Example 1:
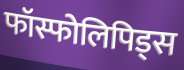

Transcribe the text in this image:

फॉस्फोलिपिड्स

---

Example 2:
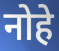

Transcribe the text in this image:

नोहे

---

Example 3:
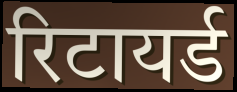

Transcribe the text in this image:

रिटायर्ड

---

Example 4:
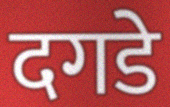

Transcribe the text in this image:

दगडे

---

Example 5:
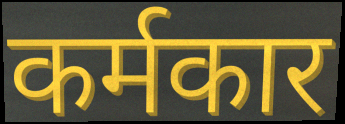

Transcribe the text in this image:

कर्मकार